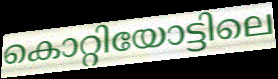
കൊറ്റിയോട്ടിലെ